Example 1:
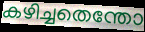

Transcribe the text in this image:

കഴിച്ചതെന്തോ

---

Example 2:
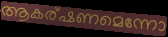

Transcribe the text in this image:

ആകര്ഷണമെന്നോ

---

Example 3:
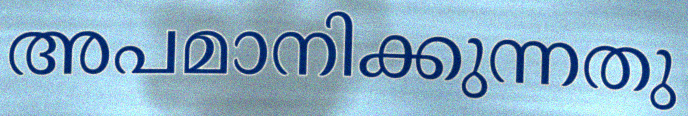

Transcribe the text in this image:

അപമാനിക്കുന്നതു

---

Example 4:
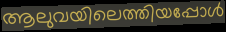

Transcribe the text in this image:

ആലുവയിലെത്തിയപ്പോൾ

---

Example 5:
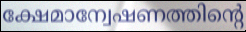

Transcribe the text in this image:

ക്ഷേമാന്വേഷണത്തിന്റെ